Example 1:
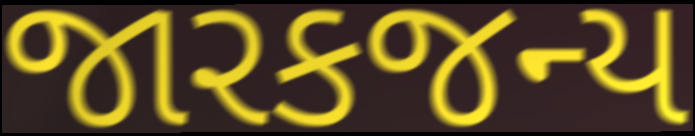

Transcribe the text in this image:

જારકજન્ય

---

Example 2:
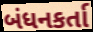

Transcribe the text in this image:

બંધનકર્તા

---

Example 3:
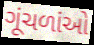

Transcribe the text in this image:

ગૂંચળાંઓ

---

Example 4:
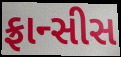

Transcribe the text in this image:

ફ્રાન્સીસ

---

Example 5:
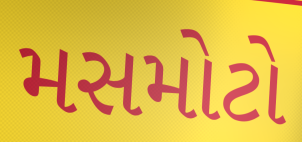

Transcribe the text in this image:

મસમોટો